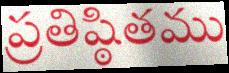
ప్రతిష్ఠితము